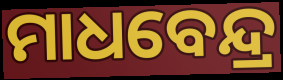
ମାଧବେନ୍ଦ୍ର